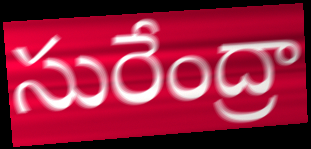
సురేంద్రా